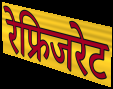
रेफ्रिजरेट